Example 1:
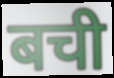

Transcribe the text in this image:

बची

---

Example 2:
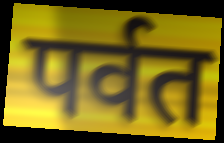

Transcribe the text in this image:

पर्वत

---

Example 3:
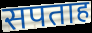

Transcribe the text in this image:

सपताह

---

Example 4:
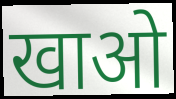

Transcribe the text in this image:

खाओ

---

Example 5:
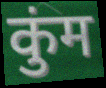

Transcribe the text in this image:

कुंम